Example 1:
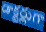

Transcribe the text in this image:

డాక్టర్లుగా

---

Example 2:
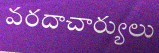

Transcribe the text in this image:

వరదాచార్యులు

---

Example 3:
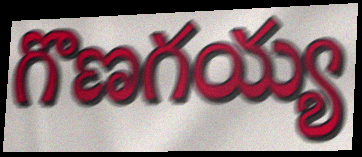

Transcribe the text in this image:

గొణగయ్య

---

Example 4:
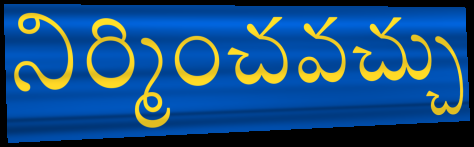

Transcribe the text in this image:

నిర్మించవచ్చు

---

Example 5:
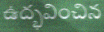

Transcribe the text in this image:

ఉద్భవించిన